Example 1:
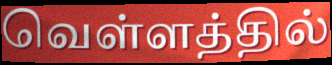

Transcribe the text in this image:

வெள்ளத்தில்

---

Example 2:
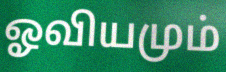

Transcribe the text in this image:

ஓவியமும்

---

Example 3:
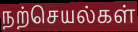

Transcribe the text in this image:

நற்செயல்கள்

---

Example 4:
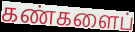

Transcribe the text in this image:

கண்களைப்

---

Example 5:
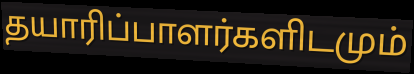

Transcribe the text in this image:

தயாரிப்பாளர்களிடமும்